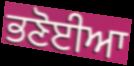
ਭਣੋਈਆ